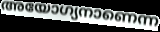
അയോഗ്യനാണെന്ന